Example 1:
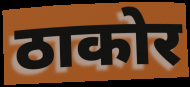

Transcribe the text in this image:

ठाकोर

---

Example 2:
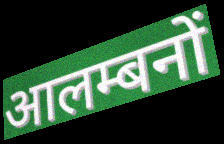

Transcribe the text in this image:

आलम्बनों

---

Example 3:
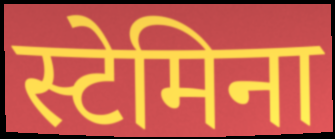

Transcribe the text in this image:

स्टेमिना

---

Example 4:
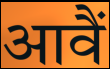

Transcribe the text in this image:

आवैं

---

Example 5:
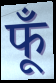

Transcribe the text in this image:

फूँ